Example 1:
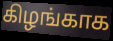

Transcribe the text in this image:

கிழங்காக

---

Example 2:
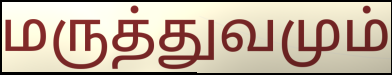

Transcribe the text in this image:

மருத்துவமும்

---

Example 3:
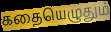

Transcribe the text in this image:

கதையெழுதும்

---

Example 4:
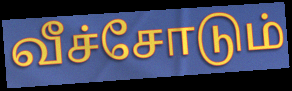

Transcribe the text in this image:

வீச்சோடும்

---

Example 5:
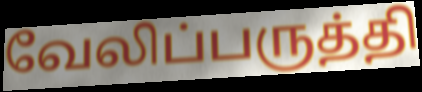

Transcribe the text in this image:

வேலிப்பருத்தி